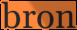
bron